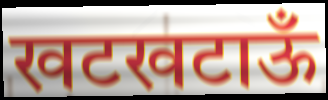
खटखटाऊँ